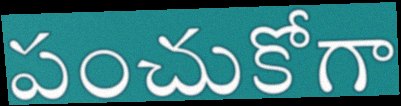
పంచుకోగా